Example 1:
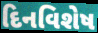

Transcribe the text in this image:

દિનવિશેષ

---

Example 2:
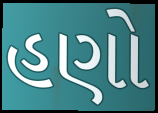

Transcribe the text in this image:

હણો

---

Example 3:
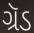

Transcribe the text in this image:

ગ્રૅડ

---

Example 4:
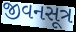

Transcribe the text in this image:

જીવનસૂત્ર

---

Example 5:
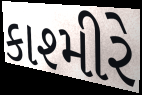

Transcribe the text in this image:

કાશ્મીરે